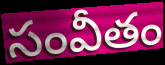
సంవీతం